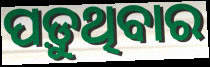
ପଡ଼ୁଥିବାର